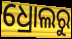
ଧ୍ରୋଲରୁ